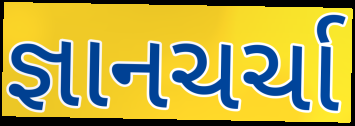
જ્ઞાનચર્ચા